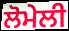
ਲੋਮੇਲੀ